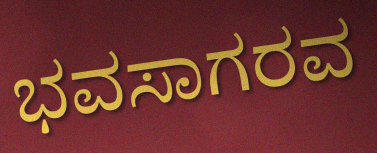
ಭವಸಾಗರವ